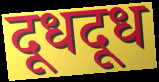
दूधदूध